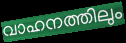
വാഹനത്തിലും